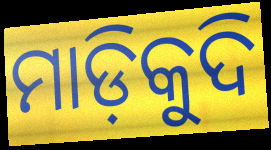
ମାଡ଼ିକୁଦି